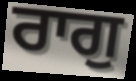
ਰਾਗੁ